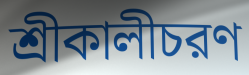
শ্রীকালীচরণ